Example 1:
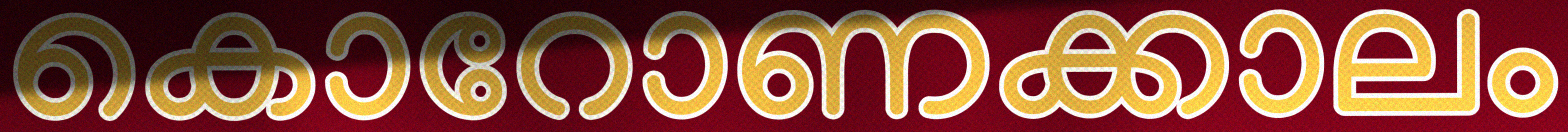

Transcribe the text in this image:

കൊറോണക്കാലം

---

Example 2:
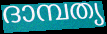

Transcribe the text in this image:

ദാമ്പത്യ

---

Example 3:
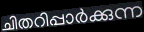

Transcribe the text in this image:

ചിതറിപ്പാർക്കുന്ന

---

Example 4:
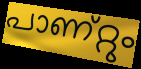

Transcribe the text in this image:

പാണ്റ്റും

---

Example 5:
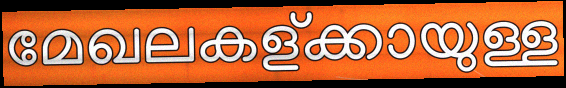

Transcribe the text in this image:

മേഖലകള്ക്കായുള്ള